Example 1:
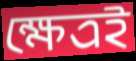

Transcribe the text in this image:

ক্ষেত্ৰই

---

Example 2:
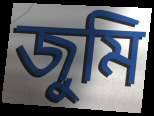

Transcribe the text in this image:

জুমি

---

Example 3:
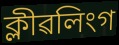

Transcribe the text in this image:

ক্লীৱলিংগ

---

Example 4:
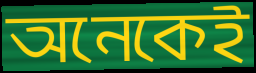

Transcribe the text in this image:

অনেকেই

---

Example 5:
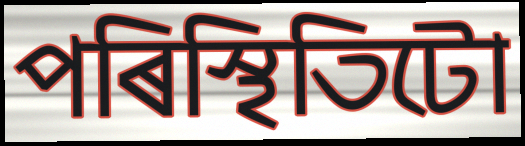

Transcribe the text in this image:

পৰিস্থিতিটো